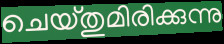
ചെയ്തുമിരിക്കുന്നു